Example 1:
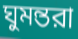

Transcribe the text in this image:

ঘুমন্তরা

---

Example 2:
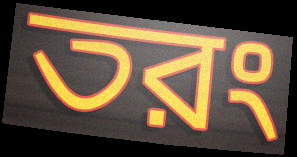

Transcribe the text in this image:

তরং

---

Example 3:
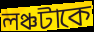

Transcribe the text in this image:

লঞ্চটাকে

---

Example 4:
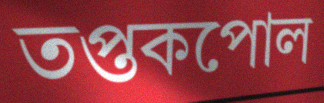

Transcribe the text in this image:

তপ্তকপোল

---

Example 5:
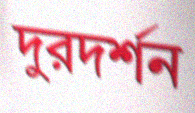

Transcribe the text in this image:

দুরদর্শন